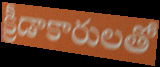
క్రీడాకారులతో